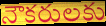
నౌకరులకు